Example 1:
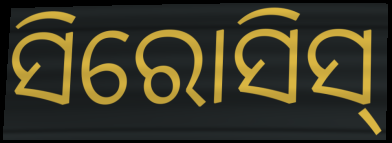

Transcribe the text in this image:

ସିରୋସିସ୍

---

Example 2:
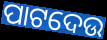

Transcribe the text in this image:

ପାଟଦେଉ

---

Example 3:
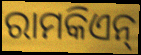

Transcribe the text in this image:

ରାମକିଏନ୍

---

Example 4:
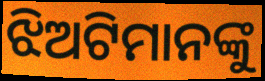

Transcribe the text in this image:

ଝିଅଟିମାନଙ୍କୁ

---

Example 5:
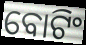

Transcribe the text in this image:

ବୋଟିଂ